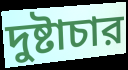
দুষ্টাচার